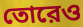
তোরেও